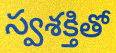
స్వశక్తితో